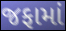
જફામાં